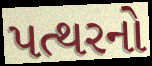
પત્થરનો